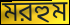
মরহুম